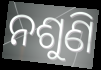
ନଶୁଣି